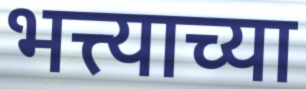
भत्त्याच्या